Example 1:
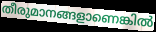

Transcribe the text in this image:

തീരുമാനങ്ങളാണെങ്കിൽ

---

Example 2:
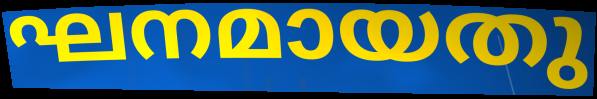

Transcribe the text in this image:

ഘനമായതു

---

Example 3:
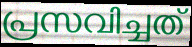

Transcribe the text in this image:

പ്രസവിച്ചത്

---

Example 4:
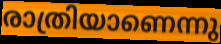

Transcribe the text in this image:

രാത്രിയാണെന്നു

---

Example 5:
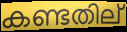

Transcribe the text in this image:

കണ്ടതില്